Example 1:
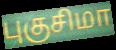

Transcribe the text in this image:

புகுசிமா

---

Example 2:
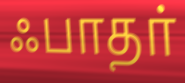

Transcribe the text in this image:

ஃபாதர்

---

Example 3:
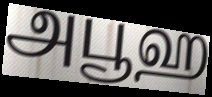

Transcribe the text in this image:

அபூஹ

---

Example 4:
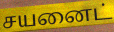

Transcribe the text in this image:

சயனைட்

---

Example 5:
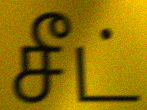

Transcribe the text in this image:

சீட்